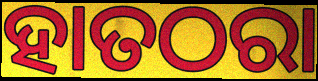
ହାତଠରା